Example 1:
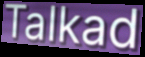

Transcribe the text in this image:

Talkad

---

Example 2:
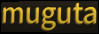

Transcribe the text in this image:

muguta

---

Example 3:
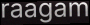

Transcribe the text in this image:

raagam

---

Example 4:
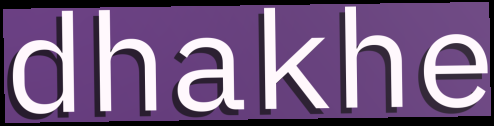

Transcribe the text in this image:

dhakhe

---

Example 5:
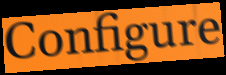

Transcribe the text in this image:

Configure